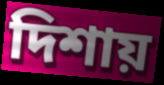
দিশায়